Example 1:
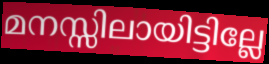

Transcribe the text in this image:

മനസ്സിലായിട്ടില്ലേ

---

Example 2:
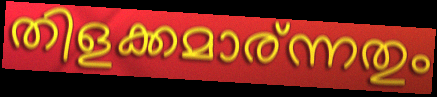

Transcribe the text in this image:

തിളക്കമാര്ന്നതും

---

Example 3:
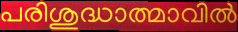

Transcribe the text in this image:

പരിശുദ്ധാത്മാവിൽ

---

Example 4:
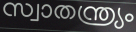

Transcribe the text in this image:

സ്വാതന്ത്ര്യം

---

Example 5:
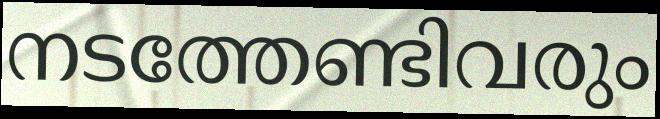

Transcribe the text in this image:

നടത്തേണ്ടിവരും